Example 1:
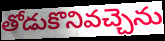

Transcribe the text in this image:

తోడుకొనివచ్చెను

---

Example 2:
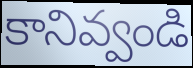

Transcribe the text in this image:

కానివ్వండి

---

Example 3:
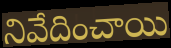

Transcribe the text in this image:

నివేదించాయి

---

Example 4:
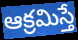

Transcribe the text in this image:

ఆక్రమిస్తే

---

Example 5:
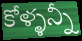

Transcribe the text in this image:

కోళ్ళన్నీ